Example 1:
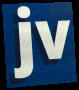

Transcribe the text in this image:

jv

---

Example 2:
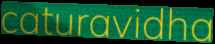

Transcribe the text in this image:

caturavidha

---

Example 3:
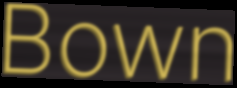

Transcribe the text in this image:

Bown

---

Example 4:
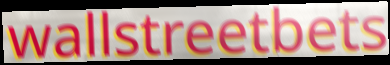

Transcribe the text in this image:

wallstreetbets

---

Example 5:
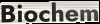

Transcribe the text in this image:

Biochem